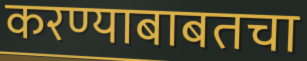
करण्याबाबतचा